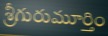
శ్రీగురుమూర్తిం